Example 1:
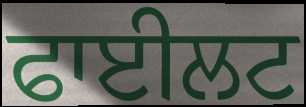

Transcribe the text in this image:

ਫਾਈਲਟ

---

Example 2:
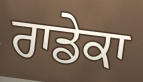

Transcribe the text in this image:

ਰਾਡੇਕਾ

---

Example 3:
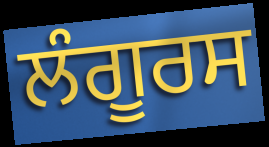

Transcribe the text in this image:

ਲੰਗੂਰਸ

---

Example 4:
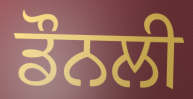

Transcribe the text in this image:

ਡੌਨਲੀ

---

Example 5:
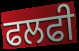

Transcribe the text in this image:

ਫਲਫੀ